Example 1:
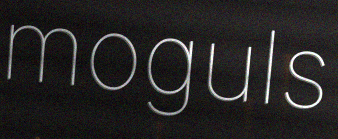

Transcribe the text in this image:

moguls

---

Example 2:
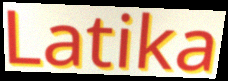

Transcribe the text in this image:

Latika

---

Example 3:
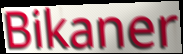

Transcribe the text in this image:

Bikaner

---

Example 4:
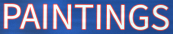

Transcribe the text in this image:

PAINTINGS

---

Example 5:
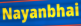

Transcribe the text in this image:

Nayanbhai